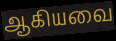
ஆகியவை